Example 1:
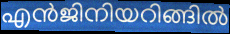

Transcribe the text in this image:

എൻജിനിയറിങ്ങിൽ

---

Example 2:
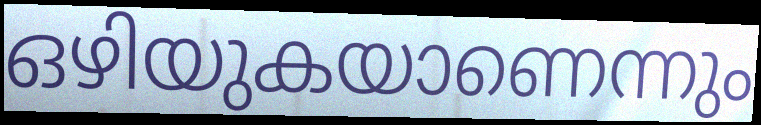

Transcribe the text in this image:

ഒഴിയുകയാണെന്നും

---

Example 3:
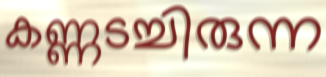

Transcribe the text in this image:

കണ്ണടച്ചിരുന്ന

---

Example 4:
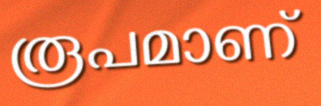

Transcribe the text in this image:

രൂപമാണ്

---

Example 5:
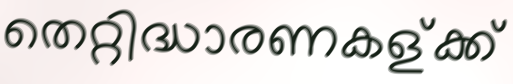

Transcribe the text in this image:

തെറ്റിദ്ധാരണകള്ക്ക്